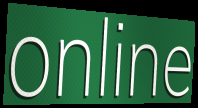
online